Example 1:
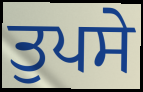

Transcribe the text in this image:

ਤੁਪਸੇ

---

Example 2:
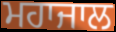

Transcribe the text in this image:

ਮਹਾਜਾਲ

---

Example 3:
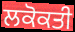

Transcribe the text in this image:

ਲਕੋਕਤੀ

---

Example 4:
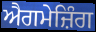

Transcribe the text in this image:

ਐਗਮੇਜ਼ਿੰਗ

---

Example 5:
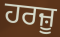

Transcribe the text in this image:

ਹਰਜ਼ੂ